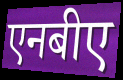
एनबीए